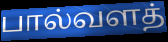
பால்வளத்